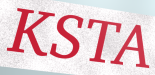
KSTA